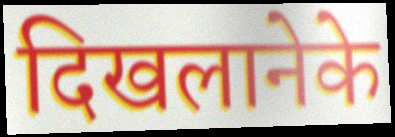
दिखलानेके